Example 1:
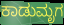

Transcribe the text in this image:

ಕಾಡುಮೃಗ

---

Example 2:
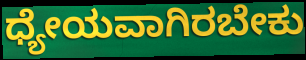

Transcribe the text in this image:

ಧ್ಯೇಯವಾಗಿರಬೇಕು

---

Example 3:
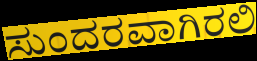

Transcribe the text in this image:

ಸುಂದರವಾಗಿರಲಿ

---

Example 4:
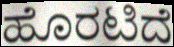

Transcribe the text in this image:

ಹೊರಟಿದೆ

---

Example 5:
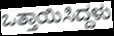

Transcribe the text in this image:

ಒತ್ತಾಯಿಸಿದ್ದಳು